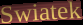
Swiatek